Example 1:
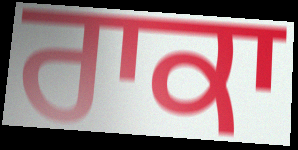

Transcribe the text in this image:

ਰਾਕਾ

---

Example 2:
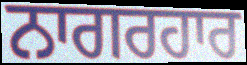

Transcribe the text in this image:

ਨਾਗਰਹਾਰ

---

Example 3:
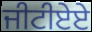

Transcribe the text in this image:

ਜੀਟੀਏਏ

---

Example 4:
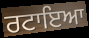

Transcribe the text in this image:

ਰਟਾਇਆ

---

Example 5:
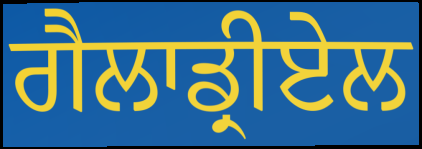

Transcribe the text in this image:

ਗੈਲਾਡ੍ਰੀਏਲ